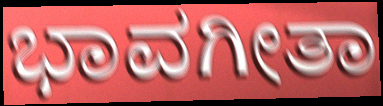
ಭಾವಗೀತಾ